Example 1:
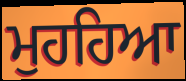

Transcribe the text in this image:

ਮੁਹਹਿਆ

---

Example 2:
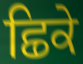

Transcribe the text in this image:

ਛਿਕੇ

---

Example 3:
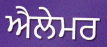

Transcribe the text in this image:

ਐਲੇਮਰ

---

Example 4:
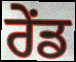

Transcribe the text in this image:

ਰੇਂਡ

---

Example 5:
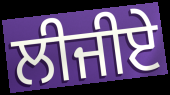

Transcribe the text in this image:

ਲੀਜੀਏ